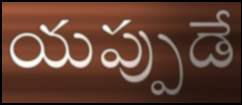
యప్పుడే